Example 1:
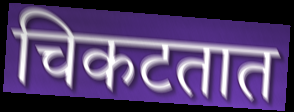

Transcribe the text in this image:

चिकटतात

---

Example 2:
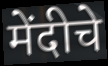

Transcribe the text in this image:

मेंदीचे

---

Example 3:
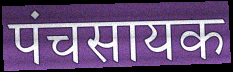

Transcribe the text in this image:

पंचसायक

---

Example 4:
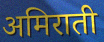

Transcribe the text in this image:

अमिराती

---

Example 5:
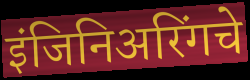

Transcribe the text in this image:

इंजिनिअरिंगचे